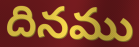
దినము